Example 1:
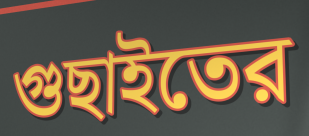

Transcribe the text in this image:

গুছাইতের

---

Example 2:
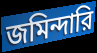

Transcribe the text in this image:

জমিন্দারি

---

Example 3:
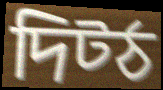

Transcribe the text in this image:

দিট্ঠ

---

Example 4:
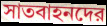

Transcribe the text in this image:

সাতবাহনদের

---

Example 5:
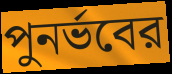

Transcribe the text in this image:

পুনর্ভবের